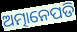
ଅତ୍ମାନେପଡି